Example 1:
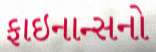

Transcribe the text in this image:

ફાઇનાન્સનો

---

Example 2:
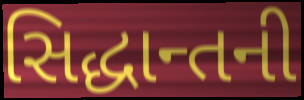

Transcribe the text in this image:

સિદ્ધાન્તની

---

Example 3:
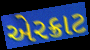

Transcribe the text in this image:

એરક્રાટ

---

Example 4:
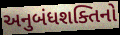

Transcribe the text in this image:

અનુબંધશક્તિનો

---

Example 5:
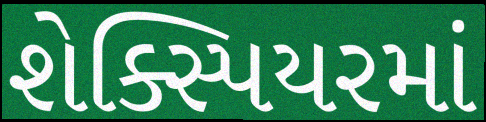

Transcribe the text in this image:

શેક્સ્પિયરમાં